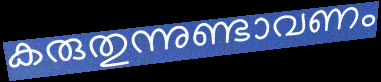
കരുതുന്നുണ്ടാവണം